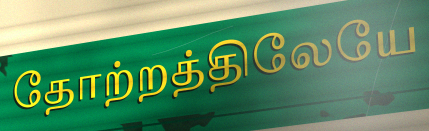
தோற்றத்திலேயே